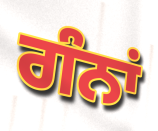
ਗੰਨਾਂ